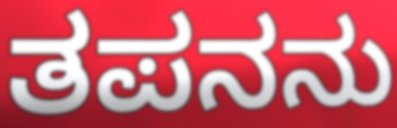
ತಪನನು